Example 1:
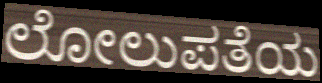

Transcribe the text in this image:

ಲೋಲುಪತೆಯ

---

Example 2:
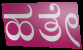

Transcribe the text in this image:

ಹತೇ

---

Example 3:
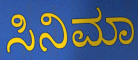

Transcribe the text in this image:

ಸಿನಿಮಾ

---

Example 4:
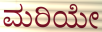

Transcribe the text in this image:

ಮರಿಯೇ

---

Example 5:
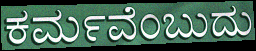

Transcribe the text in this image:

ಕರ್ಮವೆಂಬುದು